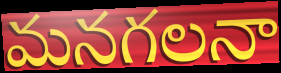
మనగలనా